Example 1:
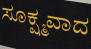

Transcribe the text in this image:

ಸೂಕ್ಷ್ಮವಾದ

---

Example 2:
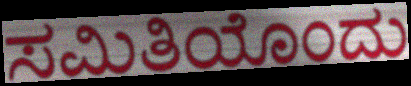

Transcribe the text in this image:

ಸಮಿತಿಯೊಂದು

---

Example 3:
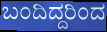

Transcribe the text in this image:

ಬಂದಿದ್ದರಿಂದ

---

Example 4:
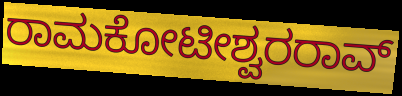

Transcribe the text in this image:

ರಾಮಕೋಟೀಶ್ವರರಾವ್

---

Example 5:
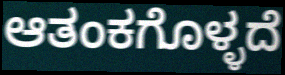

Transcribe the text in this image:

ಆತಂಕಗೊಳ್ಳದೆ